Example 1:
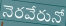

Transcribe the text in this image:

నెరవేరునో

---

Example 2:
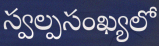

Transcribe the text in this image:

స్వల్పసంఖ్యలో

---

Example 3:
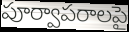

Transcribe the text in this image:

పూర్వాపరాలపై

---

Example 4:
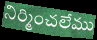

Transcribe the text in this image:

నిర్మించలేము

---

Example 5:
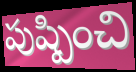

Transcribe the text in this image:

పుష్పించి